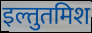
इल्तुतमिश